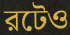
রটেও